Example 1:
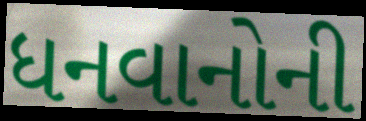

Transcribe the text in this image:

ધનવાનોની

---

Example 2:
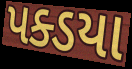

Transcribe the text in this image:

પક્ડયા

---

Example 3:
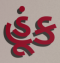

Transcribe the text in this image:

હૂંક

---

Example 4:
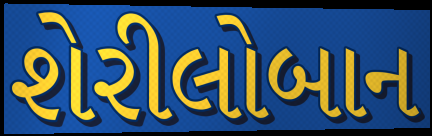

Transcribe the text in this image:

શેરીલોબાન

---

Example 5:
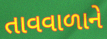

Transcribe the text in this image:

તાવવાળાને